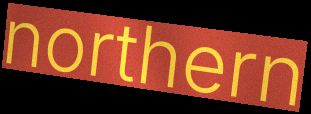
northern